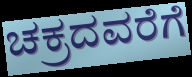
ಚಕ್ರದವರೆಗೆ